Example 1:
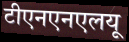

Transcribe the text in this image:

टीएनएनएलयू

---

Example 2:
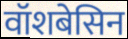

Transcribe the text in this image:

वॉशबेसिन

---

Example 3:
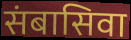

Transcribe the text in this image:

संबासिवा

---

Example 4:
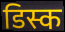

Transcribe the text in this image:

डिस्क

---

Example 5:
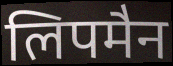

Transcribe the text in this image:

लिपमैन